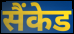
सैंकेड